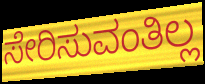
ಸೇರಿಸುವಂತಿಲ್ಲ